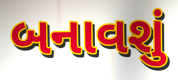
બનાવશું